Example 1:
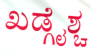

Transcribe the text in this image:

ಖಡ್ಗೈಶ್ಚ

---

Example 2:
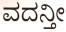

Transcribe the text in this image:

ವದನ್ತೀ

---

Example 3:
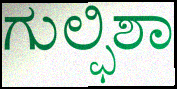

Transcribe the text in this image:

ಗುಲ್ಫಿಶಾ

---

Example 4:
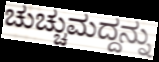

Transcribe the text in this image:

ಚುಚ್ಚುಮದ್ದನ್ನು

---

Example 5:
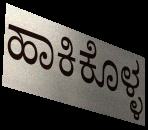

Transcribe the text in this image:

ಹಾಕಿಕೊಳ್ಳ